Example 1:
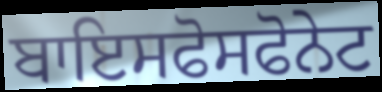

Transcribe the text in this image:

ਬਾਇਸਫੋਸਫੋਨੇਟ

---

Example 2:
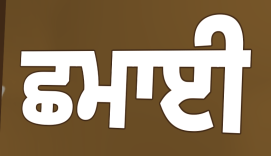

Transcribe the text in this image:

ਛਮਾਈ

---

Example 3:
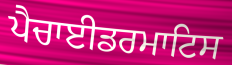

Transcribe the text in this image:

ਪੈਚਾਈਡਰਮਾਟਿਸ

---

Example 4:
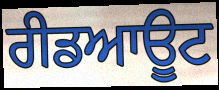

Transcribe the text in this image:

ਰੀਡਆਊਟ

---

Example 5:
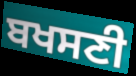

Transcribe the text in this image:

ਬਖਸਣੀ